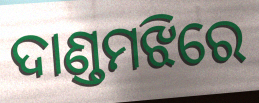
ଦାଣ୍ଡମଝିରେ